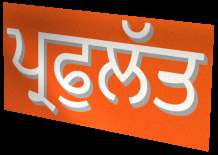
ਪ੍ਰਫੁਲੱਤ